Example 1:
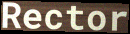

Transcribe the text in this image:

Rector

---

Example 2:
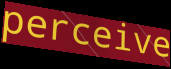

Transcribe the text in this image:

perceive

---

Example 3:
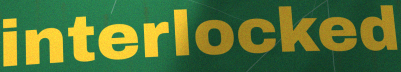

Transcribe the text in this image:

interlocked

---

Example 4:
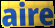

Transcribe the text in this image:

aire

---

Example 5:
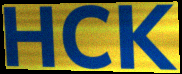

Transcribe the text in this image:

HCK